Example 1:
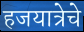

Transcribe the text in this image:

हजयात्रेचे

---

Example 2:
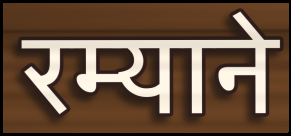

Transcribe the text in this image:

रम्याने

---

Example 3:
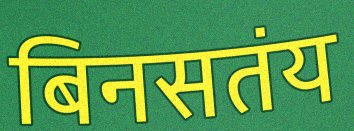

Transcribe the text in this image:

बिनसतंय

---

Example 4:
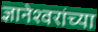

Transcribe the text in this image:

ज्ञानेश्वरांच्या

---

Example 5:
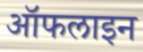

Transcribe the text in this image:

ऑफलाइन